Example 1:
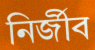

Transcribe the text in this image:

নিৰ্জীব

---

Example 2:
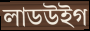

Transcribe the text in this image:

লাডউইগ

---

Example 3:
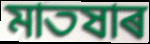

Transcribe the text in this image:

মাতষাৰ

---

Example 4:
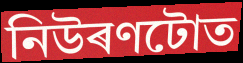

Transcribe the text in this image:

নিউৰণটোত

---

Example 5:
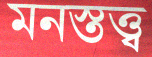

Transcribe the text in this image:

মনস্তত্ত্ব